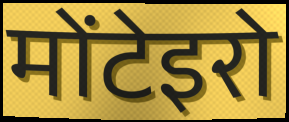
मोंटेइरो